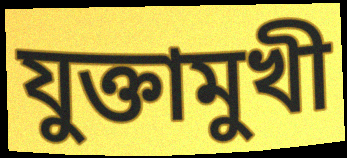
যুক্তামুখী